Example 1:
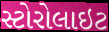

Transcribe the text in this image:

સ્ટોરોલાઇટ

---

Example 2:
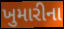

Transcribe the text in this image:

ખુમારીના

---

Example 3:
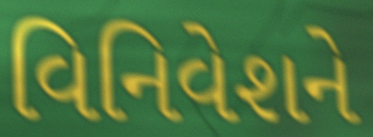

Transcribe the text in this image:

વિનિવેશને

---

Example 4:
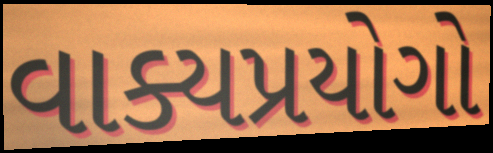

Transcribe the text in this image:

વાક્યપ્રયોગો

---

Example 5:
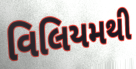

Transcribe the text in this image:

વિલિયમથી